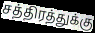
சத்திரத்துக்கு